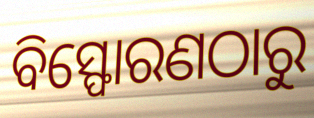
ବିସ୍ଫୋରଣଠାରୁ